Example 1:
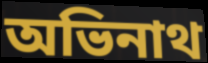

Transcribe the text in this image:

অভিনাথ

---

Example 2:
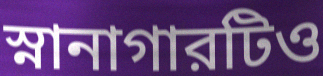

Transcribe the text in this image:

স্নানাগারটিও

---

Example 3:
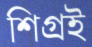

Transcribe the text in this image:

শিগ্রই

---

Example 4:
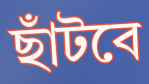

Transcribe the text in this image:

ছাঁটবে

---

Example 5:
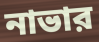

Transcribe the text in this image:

নাভার